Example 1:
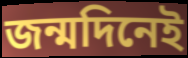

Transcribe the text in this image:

জন্মদিনেই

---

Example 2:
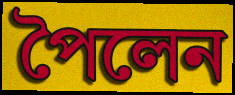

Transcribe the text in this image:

পৈলেন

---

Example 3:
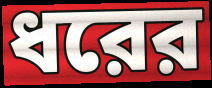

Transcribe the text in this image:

ধরের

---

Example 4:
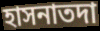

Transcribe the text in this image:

হাসনাতদা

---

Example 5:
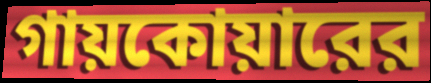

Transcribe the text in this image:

গায়কোয়ারের